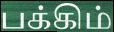
பக்கிம்